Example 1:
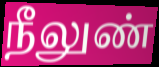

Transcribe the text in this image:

நீலுண்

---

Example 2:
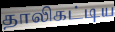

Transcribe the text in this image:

தாலிகட்டிய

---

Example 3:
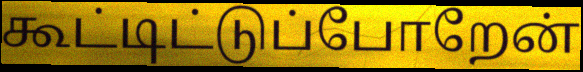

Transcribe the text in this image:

கூட்டிட்டுப்போறேன்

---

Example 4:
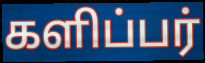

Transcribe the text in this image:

களிப்பர்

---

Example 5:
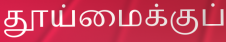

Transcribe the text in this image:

தூய்மைக்குப்